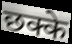
छक्के